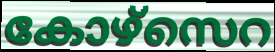
കോഴ്സെറ